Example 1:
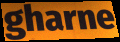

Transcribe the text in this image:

gharne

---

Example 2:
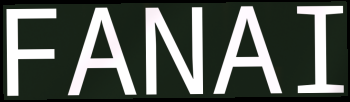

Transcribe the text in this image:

FANAI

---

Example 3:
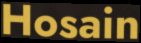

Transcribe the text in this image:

Hosain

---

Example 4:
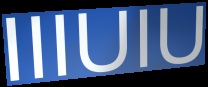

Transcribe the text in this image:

IIIUIU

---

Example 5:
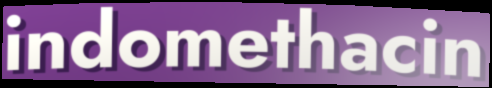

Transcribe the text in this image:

indomethacin